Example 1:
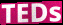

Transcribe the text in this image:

TEDs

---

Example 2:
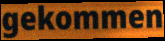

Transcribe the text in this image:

gekommen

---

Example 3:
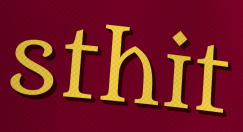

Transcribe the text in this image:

sthit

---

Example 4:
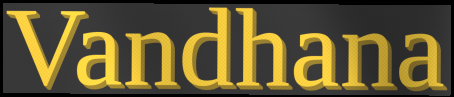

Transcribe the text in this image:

Vandhana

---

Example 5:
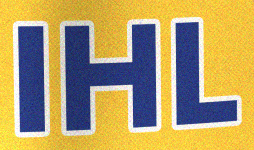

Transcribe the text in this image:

IHL